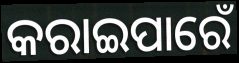
କରାଇପାରେଁ